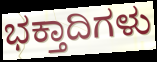
ಭಕ್ತಾದಿಗಳು